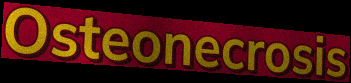
Osteonecrosis